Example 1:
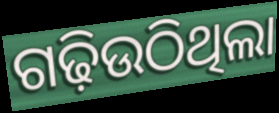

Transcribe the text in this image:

ଗଢ଼ିଉଠିଥିଲା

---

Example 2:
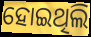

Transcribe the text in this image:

ହୋଇଥିଲି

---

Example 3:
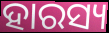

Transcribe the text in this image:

ହାରସ୍ୟ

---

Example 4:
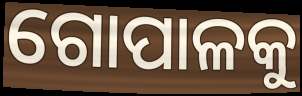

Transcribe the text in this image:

ଗୋପାଳକୁ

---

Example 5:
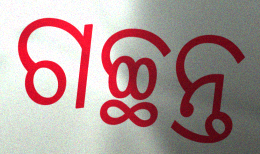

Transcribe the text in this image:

ଗଚ୍ଛନ୍ତ